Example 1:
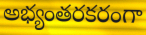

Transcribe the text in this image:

అభ్యంతరకరంగా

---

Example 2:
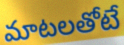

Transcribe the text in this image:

మాటలతోటే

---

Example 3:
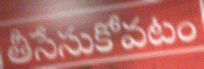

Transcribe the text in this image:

తీసేసుకోవటం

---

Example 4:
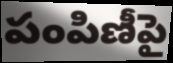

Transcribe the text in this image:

పంపిణీపై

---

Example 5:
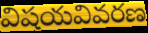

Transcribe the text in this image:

విషయవివరణ